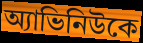
অ্যাভিনিউকে